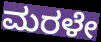
ಮರಳೇ